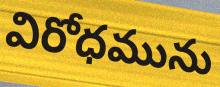
విరోధమును